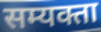
सम्यक्ता